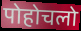
पोहोचलो